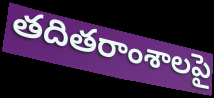
తదితరాంశాలపై